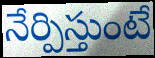
నేర్పిస్తుంటే